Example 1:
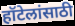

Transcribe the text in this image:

हॉटेलांसाठी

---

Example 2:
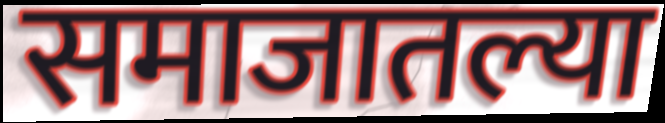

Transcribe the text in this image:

समाजातल्‍या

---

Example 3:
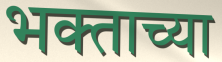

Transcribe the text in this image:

भक्ताच्या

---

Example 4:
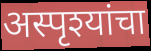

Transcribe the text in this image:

अस्पृश्यांचा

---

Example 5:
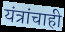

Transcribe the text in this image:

यंत्रांचाही